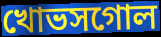
খোভসগোল